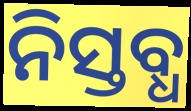
ନିସ୍ତବ୍ଧ